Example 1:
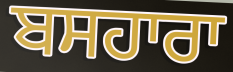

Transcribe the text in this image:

ਬਸਹਾਰਾ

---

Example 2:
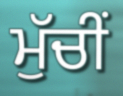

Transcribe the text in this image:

ਮੁੱਚੀਂ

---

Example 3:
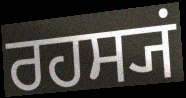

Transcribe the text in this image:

ਰਹਸ੍ਯਂ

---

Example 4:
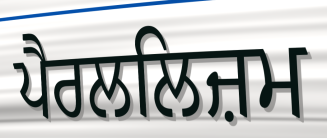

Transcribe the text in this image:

ਪੈਰਲਲਿਜ਼ਮ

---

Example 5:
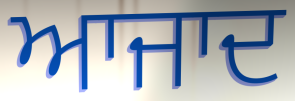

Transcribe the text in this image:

ਆਜਾਦ